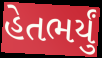
હેતભર્યું